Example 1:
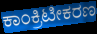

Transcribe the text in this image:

ಕಾಂಕ್ರಿಟೀಕರಣ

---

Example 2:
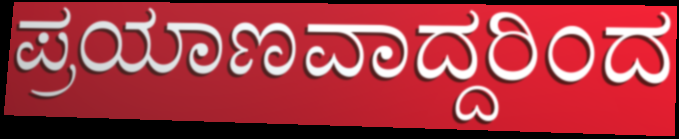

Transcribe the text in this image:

ಪ್ರಯಾಣವಾದ್ದರಿಂದ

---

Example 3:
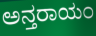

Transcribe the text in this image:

ಅನ್ತರಾಯಂ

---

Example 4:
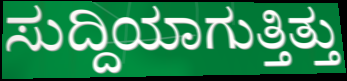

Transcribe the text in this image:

ಸುದ್ದಿಯಾಗುತ್ತಿತ್ತು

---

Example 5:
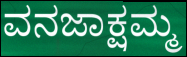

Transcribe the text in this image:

ವನಜಾಕ್ಷಮ್ಮ